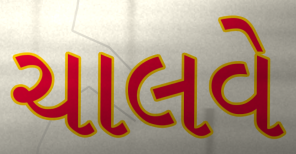
ચાલવે